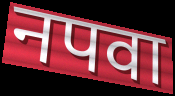
नपवा